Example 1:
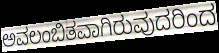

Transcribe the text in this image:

ಅವಲಂಬಿತವಾಗಿರುವುದರಿಂದ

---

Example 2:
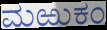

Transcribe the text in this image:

ಮಱುಕಂ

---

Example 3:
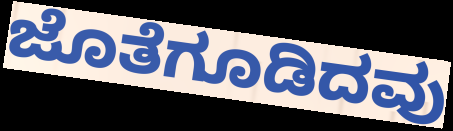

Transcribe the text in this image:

ಜೊತೆಗೂಡಿದವು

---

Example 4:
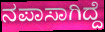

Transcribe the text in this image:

ನಪಾಸಾಗಿದ್ದೆ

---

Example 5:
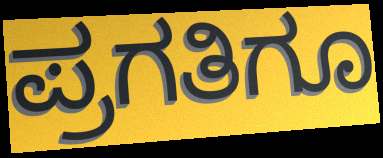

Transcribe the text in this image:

ಪ್ರಗತಿಗೂ